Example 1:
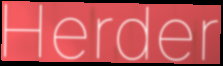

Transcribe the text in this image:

Herder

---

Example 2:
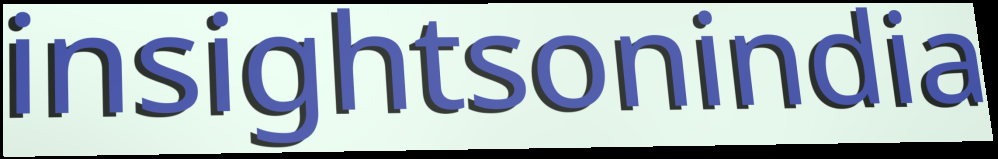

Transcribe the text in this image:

insightsonindia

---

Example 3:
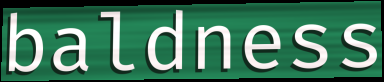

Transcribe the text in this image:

baldness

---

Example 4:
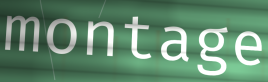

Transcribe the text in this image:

montage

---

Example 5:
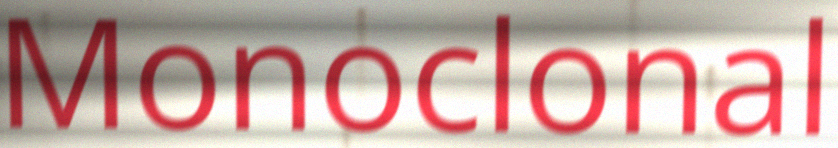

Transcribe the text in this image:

Monoclonal